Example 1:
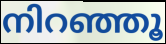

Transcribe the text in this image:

നിറഞ്ഞൂ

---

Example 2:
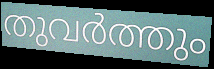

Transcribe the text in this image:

തുവർത്തും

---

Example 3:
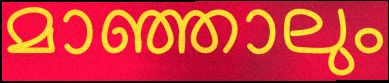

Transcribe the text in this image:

മാഞ്ഞാലും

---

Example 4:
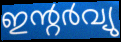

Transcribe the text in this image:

ഇന്റർവ്യു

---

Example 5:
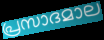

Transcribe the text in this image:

പ്രസാദമാല